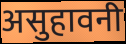
असुहावनी